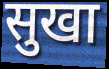
सुखा